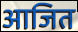
आजित